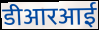
डीआरआई